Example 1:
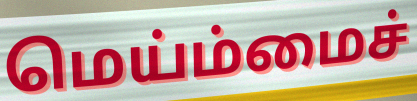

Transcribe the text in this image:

மெய்ம்மைச்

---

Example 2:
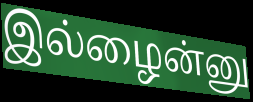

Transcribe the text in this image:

இல்ழைன்னு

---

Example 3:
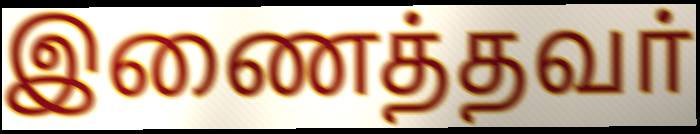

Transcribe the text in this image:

இணைத்தவர்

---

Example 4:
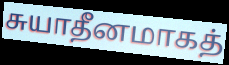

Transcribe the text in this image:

சுயாதீனமாகத்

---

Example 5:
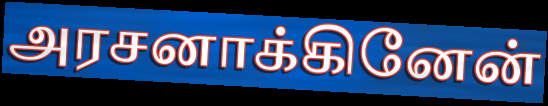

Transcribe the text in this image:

அரசனாக்கினேன்